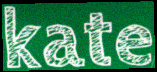
kate